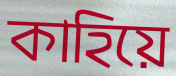
কাহিয়ে